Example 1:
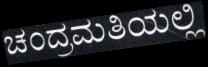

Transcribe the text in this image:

ಚಂದ್ರಮತಿಯಲ್ಲಿ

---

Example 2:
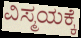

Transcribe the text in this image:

ವಿಸ್ಮಯಕ್ಕೆ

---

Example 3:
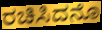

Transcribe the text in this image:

ರಚಿಸಿದನೊ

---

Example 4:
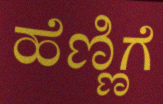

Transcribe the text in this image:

ಹೆಣ್ಣಿಗೆ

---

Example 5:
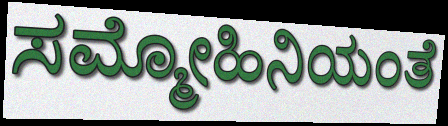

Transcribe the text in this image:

ಸಮ್ಮೋಹಿನಿಯಂತೆ